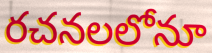
రచనలలోనూ